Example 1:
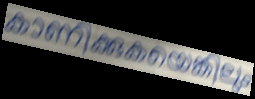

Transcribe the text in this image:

കാണിക്കുകയെങ്കിലും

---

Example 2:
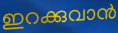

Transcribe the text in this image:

ഇറക്കുവാൻ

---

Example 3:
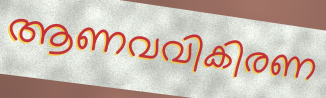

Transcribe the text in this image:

ആണവവികിരണ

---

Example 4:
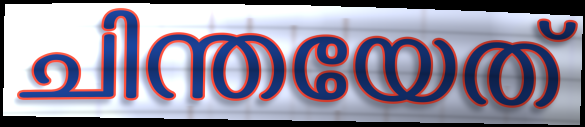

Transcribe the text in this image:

ചിന്തയേത്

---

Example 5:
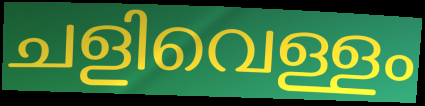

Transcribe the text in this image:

ചളിവെള്ളം